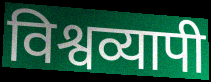
विश्वव्यापी